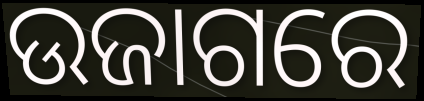
ଉଜାଗରେ